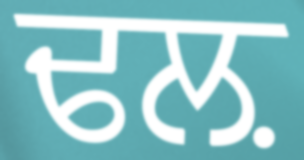
ਢਲ਼